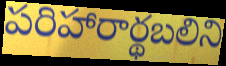
పరిహారార్థబలిని